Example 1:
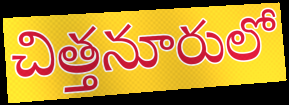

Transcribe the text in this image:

చిత్తనూరులో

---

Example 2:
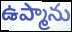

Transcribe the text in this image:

ఉప్మాను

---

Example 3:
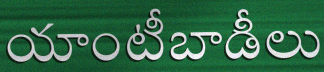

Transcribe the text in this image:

యాంటీబాడీలు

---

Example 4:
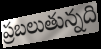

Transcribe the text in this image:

ప్రబలుతున్నది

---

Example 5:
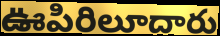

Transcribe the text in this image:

ఊపిరిలూదారు